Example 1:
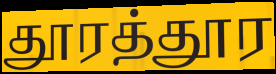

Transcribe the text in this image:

தூரத்தூர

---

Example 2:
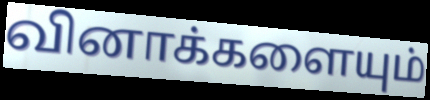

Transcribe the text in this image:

வினாக்களையும்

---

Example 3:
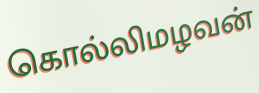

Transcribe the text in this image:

கொல்லிமழவன்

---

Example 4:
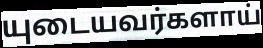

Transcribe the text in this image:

யுடையவர்களாய்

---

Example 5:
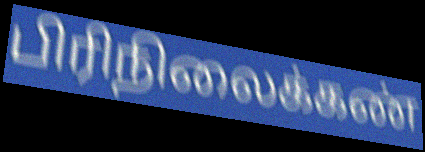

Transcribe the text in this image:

பிரிநிலைக்கண்